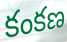
కంకణ